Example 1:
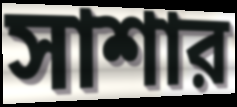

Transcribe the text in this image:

সাশার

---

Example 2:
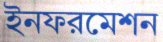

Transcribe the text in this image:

ইনফরমেশন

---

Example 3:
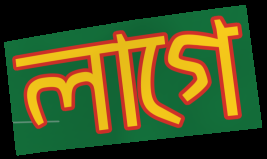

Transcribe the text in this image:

লাগে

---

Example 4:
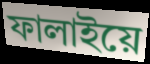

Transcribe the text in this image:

ফালাইয়ে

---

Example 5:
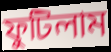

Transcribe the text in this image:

ফুটিলাম